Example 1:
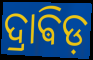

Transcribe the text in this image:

ଦ୍ରାଵିଡ଼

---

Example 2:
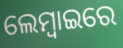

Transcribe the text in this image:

ଲେମ୍ବାଇରେ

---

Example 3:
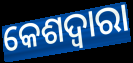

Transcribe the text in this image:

କେଶଦ୍ବାରା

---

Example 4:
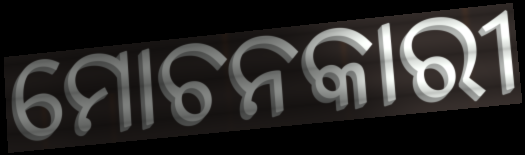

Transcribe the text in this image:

ମୋଚନକାରୀ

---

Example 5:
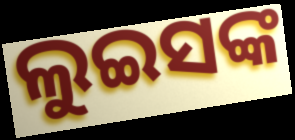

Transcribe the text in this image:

ଲୁଇସଙ୍କ